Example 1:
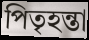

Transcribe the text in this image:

পিতৃহন্তা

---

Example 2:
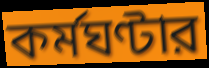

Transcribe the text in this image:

কর্মঘণ্টার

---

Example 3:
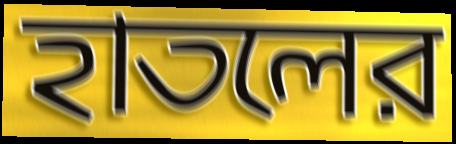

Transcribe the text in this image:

হাতলের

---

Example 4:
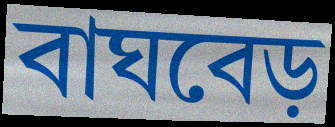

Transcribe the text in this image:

বাঘবেড়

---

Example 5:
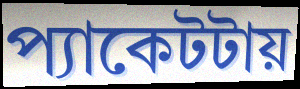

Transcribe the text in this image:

প্যাকেটটায়